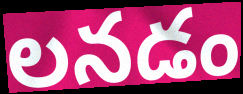
లనడం